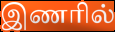
இணரில்